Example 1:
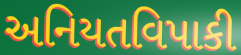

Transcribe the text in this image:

અનિયતવિપાકી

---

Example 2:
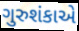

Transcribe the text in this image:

ગુરુશંકાએ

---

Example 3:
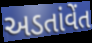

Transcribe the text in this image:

અડતાંવેંત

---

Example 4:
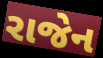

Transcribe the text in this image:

રાજેન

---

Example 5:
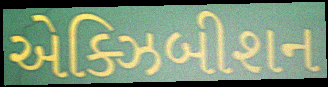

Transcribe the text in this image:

એક્ઝિબીશન